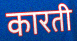
कारती